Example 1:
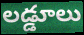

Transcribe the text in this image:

లడ్డూలు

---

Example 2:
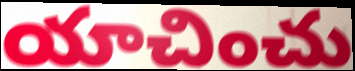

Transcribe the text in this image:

యాచించు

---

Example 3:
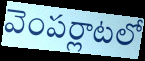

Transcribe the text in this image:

వెంపర్లాటలో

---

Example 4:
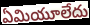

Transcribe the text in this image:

ఏమియూలేదు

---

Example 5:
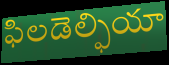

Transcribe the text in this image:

ఫిలడెల్ఫియా